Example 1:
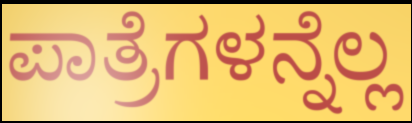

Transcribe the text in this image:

ಪಾತ್ರೆಗಳನ್ನೆಲ್ಲ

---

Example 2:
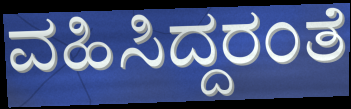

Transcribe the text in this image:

ವಹಿಸಿದ್ದರಂತೆ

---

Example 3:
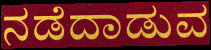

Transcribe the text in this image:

ನಡೆದಾಡುವ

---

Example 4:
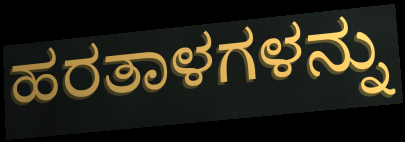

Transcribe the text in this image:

ಹರತಾಳಗಳನ್ನು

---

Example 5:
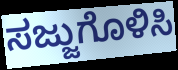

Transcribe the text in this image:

ಸಜ್ಜುಗೊಳಿಸಿ